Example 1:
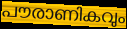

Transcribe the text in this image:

പൗരാണികവും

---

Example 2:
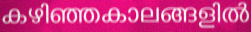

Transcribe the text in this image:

കഴിഞ്ഞകാലങ്ങളിൽ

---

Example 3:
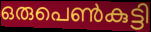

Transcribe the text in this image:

ഒരുപെൺകുട്ടി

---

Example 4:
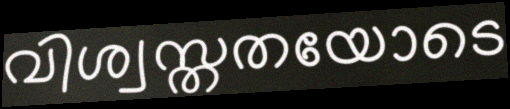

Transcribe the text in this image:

വിശ്വസ്തതയോടെ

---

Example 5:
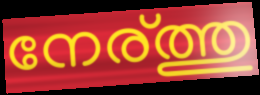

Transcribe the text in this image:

നേര്ത്തു